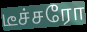
டீச்சரோ